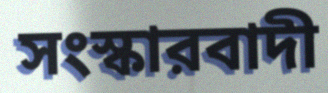
সংস্কারবাদী